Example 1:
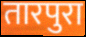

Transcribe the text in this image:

तारपुरा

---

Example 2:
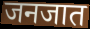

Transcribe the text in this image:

जनजात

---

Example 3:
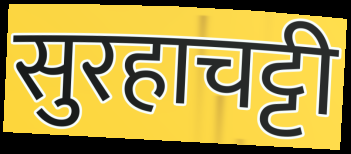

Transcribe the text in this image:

सुरहाचट्टी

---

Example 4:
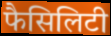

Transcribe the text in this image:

फैसिलिटी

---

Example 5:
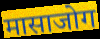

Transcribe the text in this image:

मासाजोग